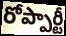
రోప్పార్టీ